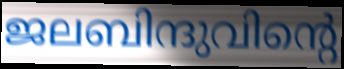
ജലബിന്ദുവിന്റെ